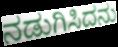
ನಡುಗಿಸಿದನು